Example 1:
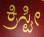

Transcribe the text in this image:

ಕ್ರಿಸ್ಟೀ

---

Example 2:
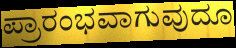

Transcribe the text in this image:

ಪ್ರಾರಂಭವಾಗುವುದೂ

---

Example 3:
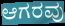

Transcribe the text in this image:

ಆಗರವು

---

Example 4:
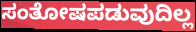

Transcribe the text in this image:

ಸಂತೋಷಪಡುವುದಿಲ್ಲ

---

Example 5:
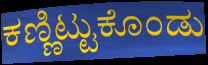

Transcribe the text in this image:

ಕಣ್ಣಿಟ್ಟುಕೊಂಡು